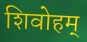
शिवोहम्